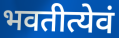
भवतीत्येवं